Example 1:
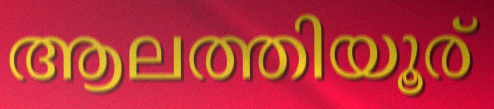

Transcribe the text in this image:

ആലത്തിയൂര്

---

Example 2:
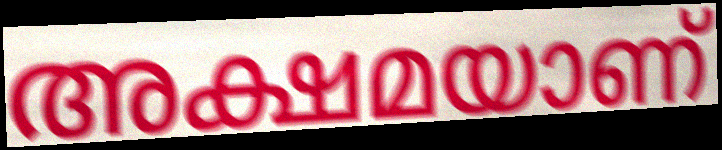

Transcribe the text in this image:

അക്ഷമയാണ്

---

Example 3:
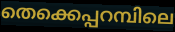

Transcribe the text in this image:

തെക്കെപ്പറമ്പിലെ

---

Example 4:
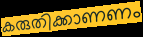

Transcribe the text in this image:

കരുതിക്കാണണം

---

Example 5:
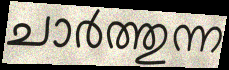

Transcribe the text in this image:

ചാർത്തുന്ന